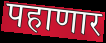
पहाणार